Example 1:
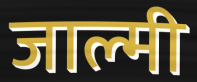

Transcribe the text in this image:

जाल्मी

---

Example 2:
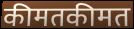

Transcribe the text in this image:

कीमतकीमत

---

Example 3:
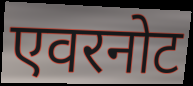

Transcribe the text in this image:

एवरनोट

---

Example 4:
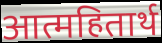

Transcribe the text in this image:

आत्महितार्थ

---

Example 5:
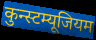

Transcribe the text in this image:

कुन्स्टम्यूजियम